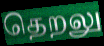
தெறலு